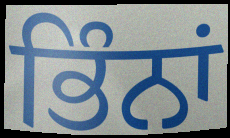
ਭਿੰਨਾਂ